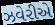
ઝવેરીએ